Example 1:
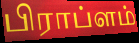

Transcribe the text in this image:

பிராப்ளம்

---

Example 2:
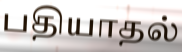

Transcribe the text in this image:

பதியாதல்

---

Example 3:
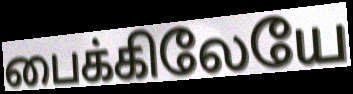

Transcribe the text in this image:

பைக்கிலேயே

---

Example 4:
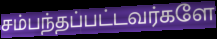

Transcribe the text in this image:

சம்பந்தப்பட்டவர்களே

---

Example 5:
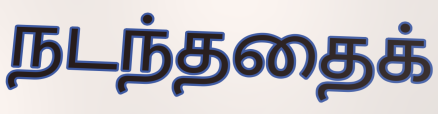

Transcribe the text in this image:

நடந்ததைக்